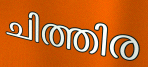
ചിത്തിര